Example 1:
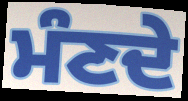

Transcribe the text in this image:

ਮੰਣਦੇ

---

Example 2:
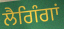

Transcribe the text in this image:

ਲੈਗਿੰਗਾਂ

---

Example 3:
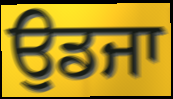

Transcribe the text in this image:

ਉਡਜਾ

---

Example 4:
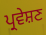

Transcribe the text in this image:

ਪ੍ਰਵੇਸ਼ਣ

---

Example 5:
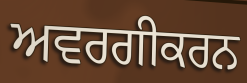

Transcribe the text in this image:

ਅਵਰਗੀਕਰਨ